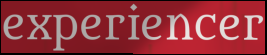
experiencer